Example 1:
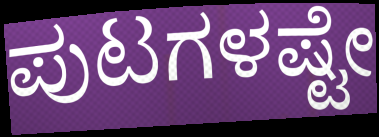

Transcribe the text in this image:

ಪುಟಗಳಷ್ಟೇ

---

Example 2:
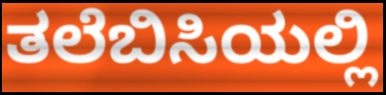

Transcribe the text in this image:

ತಲೆಬಿಸಿಯಲ್ಲಿ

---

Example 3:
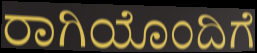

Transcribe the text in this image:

ರಾಗಿಯೊಂದಿಗೆ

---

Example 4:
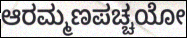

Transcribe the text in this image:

ಆರಮ್ಮಣಪಚ್ಚಯೋ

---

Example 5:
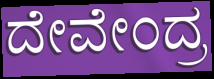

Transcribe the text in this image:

ದೇವೇಂದ್ರ